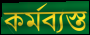
কর্মব্যস্ত